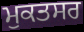
ਮੁਕਤਸਰ